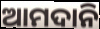
ଆମଦାନି